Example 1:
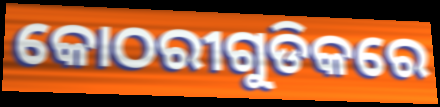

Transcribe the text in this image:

କୋଠରୀଗୁଡିକରେ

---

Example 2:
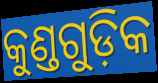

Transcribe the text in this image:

କୁଣ୍ଡଗୁଡ଼ିକ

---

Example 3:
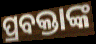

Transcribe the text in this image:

ପ୍ରବକ୍ତାଙ୍କ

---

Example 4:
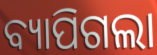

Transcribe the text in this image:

ବ୍ୟାପିଗଲା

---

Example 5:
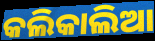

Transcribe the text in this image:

କଲିକାଲିଆ